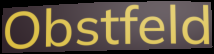
Obstfeld